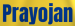
Prayojan